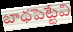
బాధపెట్టేవి